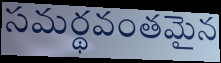
సమర్థవంతమైన